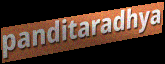
panditaradhya